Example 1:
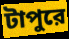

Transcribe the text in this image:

টাপুরে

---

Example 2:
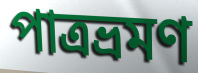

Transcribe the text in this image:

পাত্রভ্রমণ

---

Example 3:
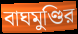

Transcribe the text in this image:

বাঘমুণ্ডির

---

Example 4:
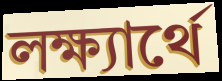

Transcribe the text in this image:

লক্ষ্যার্থে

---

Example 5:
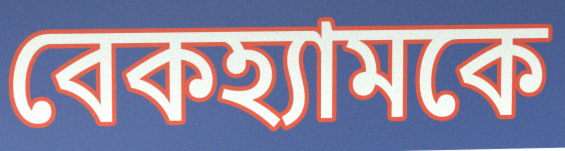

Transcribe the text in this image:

বেকহ্যামকে